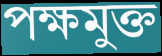
পক্ষমুক্ত